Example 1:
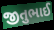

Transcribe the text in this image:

જીતુભાઈ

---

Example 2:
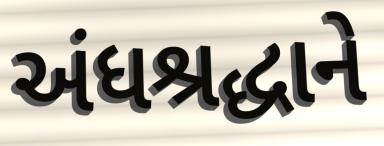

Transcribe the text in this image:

અંધશ્રદ્ધાને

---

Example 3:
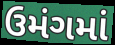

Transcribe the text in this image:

ઉમંગમાં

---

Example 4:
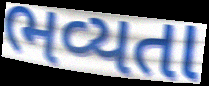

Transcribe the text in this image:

ભવ્યતા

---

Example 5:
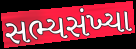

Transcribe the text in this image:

સભ્યસંખ્યા